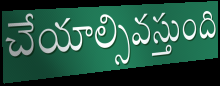
చేయాల్సివస్తుంది